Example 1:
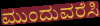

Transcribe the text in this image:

ಮುಂದುವರೆಸಿ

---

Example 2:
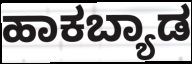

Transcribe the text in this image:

ಹಾಕಬ್ಯಾಡ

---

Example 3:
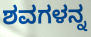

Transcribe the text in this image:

ಶವಗಳನ್ನ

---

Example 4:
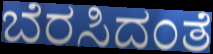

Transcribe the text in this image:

ಬೆರಸಿದಂತೆ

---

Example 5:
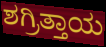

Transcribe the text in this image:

ಶಗ್ರಿತ್ತಾಯ